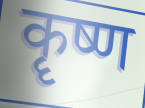
कॄष्ण